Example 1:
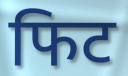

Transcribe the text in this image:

फिट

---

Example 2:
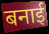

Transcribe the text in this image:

बनाई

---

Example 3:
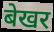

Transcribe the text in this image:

बेखर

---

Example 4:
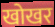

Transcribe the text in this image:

खोखर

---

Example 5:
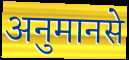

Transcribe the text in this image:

अनुमानसे